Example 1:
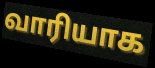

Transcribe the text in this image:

வாரியாக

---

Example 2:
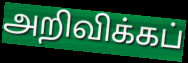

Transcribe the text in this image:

அறிவிக்கப்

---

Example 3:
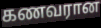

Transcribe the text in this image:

கணவரான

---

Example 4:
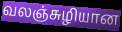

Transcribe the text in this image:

வலஞ்சுழியான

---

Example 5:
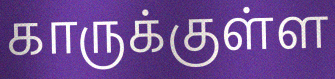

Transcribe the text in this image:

காருக்குள்ள